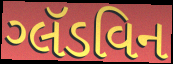
ગ્લૅડવિન